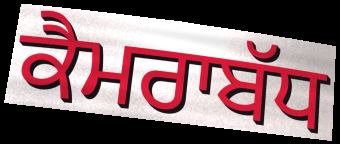
ਕੈਮਰਾਬੱਧ